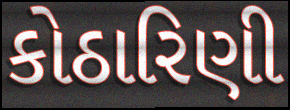
કોઠારિણી